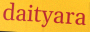
daityara